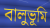
বালুভূমি